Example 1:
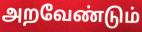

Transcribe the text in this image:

அறவேண்டும்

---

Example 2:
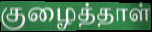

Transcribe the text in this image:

குழைத்தாள்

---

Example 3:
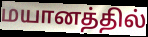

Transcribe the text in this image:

மயானத்தில்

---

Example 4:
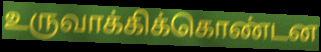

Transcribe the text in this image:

உருவாக்கிக்கொண்டன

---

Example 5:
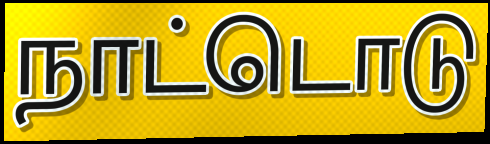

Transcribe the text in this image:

நாட்டொடு